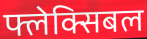
फ्लेक्सिबल